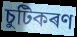
চুটিকৰণ